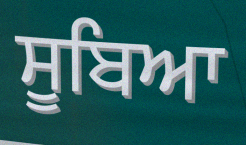
ਸੂਬਿਆ